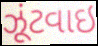
ઝૂંટવાઇ